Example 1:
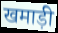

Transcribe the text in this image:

खमाड़ी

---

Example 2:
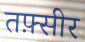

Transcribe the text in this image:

तफ़्सीर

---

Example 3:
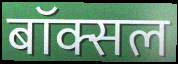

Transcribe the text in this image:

बॉक्सल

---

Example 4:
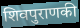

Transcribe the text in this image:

शिवपुराणकी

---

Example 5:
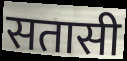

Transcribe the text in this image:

सतासी